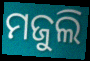
ମଜୁଲି